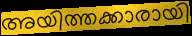
അയിത്തക്കാരായി